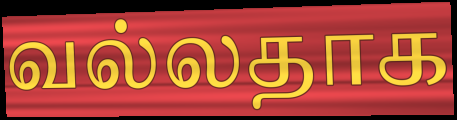
வல்லதாக